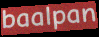
baalpan